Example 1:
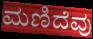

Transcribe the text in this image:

ಮಣಿದೆವು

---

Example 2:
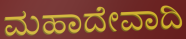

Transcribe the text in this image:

ಮಹಾದೇವಾದಿ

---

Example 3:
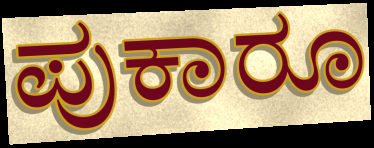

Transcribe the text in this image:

ಪುಕಾರೂ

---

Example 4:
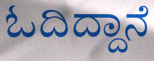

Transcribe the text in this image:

ಓದಿದ್ದಾನೆ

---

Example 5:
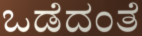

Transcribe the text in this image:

ಒಡೆದಂತೆ